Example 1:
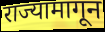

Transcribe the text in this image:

राज्यामागून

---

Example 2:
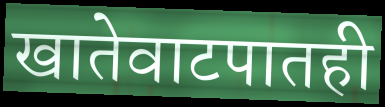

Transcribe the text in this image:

खातेवाटपातही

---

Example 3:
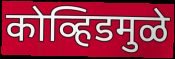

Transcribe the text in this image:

कोव्हिडमुळे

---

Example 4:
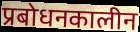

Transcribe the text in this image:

प्रबोधनकालीन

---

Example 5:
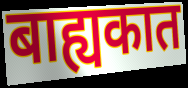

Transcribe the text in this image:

बाह्यकात